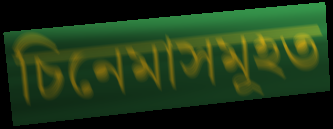
চিনেমাসমূহত